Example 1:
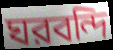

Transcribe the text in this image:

ঘরবন্দি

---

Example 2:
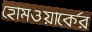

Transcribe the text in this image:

হোমওয়ার্কের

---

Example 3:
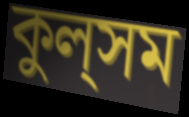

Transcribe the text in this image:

কুল্‌সম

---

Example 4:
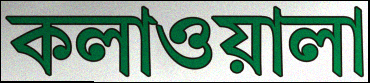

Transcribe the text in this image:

কলাওয়ালা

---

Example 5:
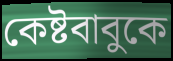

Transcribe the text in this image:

কেষ্টবাবুকে